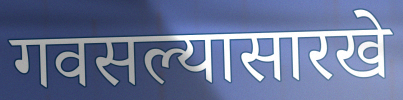
गवसल्यासारखे